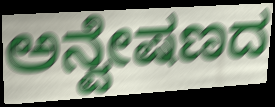
ಅನ್ವೇಷಣದ